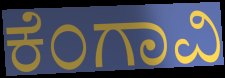
ಕೆಂಗಾವಿ